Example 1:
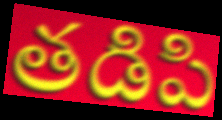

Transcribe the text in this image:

తడిపి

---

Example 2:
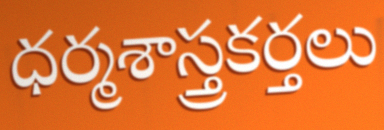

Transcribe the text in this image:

ధర్మశాస్త్రకర్తలు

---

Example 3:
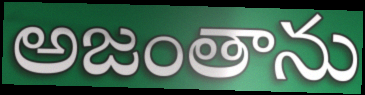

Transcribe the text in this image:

అజంతాను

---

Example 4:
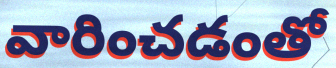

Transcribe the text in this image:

వారించడంతో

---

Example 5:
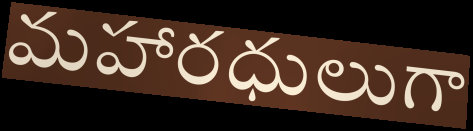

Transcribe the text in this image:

మహారధులుగా